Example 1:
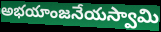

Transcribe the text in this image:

అభయాంజనేయస్వామి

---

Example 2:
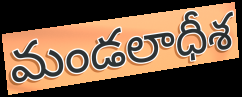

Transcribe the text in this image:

మండలాధీశ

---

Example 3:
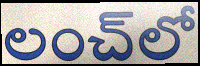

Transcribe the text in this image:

లంచ్‌లో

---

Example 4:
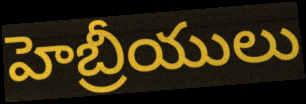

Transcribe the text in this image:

హెబ్రీయులు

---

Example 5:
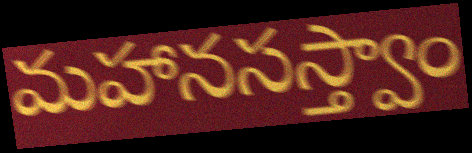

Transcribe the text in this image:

మహానసస్త్వాం